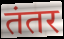
तंतर